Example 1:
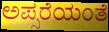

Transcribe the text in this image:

ಅಪ್ಸರೆಯಂತೆ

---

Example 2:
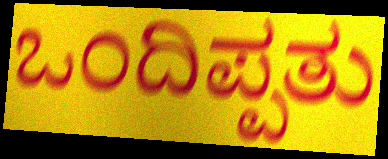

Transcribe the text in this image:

ಒಂದಿಪ್ಪತು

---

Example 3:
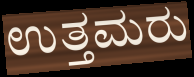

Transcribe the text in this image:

ಉತ್ತಮರು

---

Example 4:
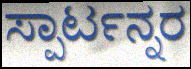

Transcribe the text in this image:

ಸ್ಪಾರ್ಟನ್ನರ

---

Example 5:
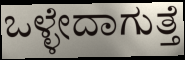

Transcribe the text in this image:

ಒಳ್ಳೇದಾಗುತ್ತೆ